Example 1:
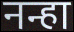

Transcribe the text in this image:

नन्हा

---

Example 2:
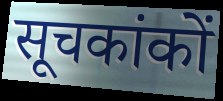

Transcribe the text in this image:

सूचकांकों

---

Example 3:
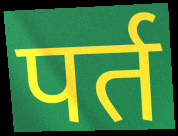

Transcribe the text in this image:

पर्त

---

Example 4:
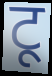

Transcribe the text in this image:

टू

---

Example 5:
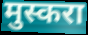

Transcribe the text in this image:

मुस्करा